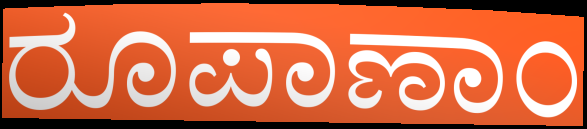
ರೂಪಾಣಾಂ